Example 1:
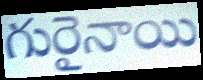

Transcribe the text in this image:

గురైనాయి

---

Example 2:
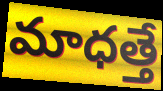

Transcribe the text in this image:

మాధత్తే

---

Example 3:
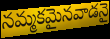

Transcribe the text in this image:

నమ్మకమైనవాడనై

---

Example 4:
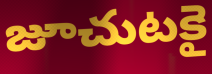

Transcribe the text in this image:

జూచుటకై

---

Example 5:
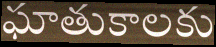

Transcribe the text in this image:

ఘాతుకాలకు